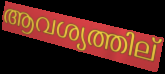
ആവശ്യത്തില്